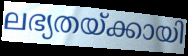
ലഭ്യതയ്ക്കായി